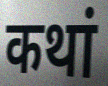
कथां